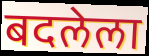
बदलेला